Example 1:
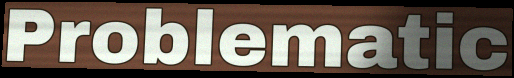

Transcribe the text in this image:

Problematic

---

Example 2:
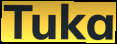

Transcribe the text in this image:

Tuka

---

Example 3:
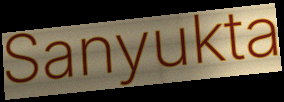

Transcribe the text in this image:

Sanyukta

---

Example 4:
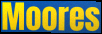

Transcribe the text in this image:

Moores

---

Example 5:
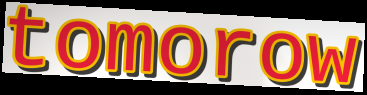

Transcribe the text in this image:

tomorow